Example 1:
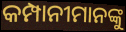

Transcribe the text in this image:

କମ୍ପାନୀମାନଙ୍କୁ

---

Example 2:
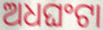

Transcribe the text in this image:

ଅଧଘଂଟା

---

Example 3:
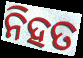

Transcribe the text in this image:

ନିହତ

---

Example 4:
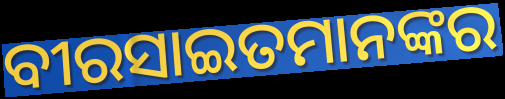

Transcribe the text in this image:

ବୀରସାଇତମାନଙ୍କର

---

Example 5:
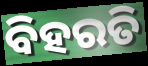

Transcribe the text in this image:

ବିହରତି